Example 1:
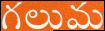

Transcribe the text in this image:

గలుమ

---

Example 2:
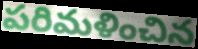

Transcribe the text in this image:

పరిమళించిన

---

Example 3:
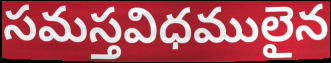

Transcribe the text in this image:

సమస్తవిధములైన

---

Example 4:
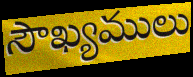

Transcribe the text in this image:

సౌఖ్యములు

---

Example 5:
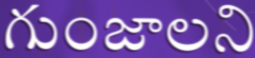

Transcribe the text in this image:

గుంజాలని